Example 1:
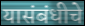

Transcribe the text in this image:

यासंबंधीचे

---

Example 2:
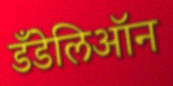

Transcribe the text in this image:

डँडेलिऑन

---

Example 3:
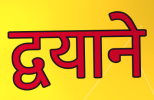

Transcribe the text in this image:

द्वयाने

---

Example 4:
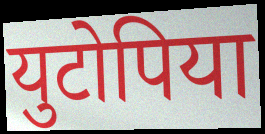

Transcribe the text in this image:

युटोपिया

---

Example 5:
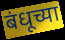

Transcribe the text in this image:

बंधूच्या